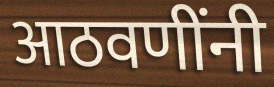
आठवणींनी